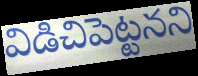
విడిచిపెట్టనని